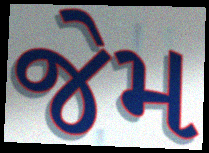
જેમ